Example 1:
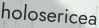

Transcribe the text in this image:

holosericea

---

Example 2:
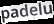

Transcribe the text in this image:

padelu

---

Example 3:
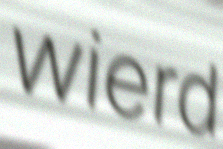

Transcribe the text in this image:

wierd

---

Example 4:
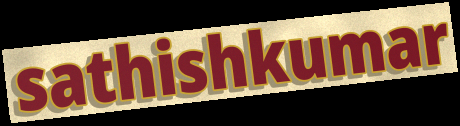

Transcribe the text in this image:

sathishkumar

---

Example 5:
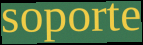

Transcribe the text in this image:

soporte